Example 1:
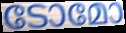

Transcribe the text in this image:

ടോമോ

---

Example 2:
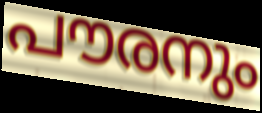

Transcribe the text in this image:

പൗരനും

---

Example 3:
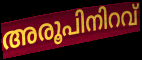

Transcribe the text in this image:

അരൂപിനിറവ്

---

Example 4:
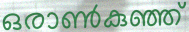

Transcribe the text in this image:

ഒരാൺകുഞ്ഞ്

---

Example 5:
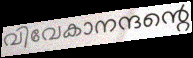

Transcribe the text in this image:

വിവേകാനന്ദന്റെ